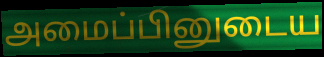
அமைப்பினுடைய